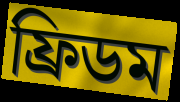
ফ্ৰিডম